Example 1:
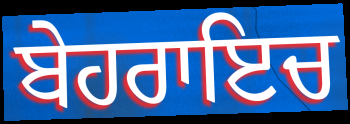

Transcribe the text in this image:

ਬੇਹਰਾਇਚ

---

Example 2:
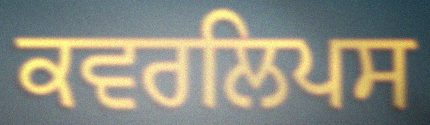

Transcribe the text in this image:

ਕਵਰਲਿਪਸ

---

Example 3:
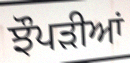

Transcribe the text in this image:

ਝੌਪੜੀਆਂ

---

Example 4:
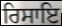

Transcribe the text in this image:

ਰਿਸਾਇ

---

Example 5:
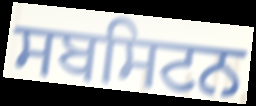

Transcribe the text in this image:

ਸਬਸਿਟਨ